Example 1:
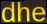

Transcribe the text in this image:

dhe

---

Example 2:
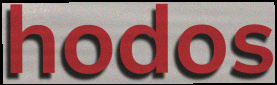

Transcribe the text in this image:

hodos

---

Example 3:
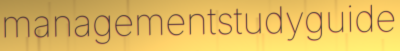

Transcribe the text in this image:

managementstudyguide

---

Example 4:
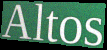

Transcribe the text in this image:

Altos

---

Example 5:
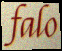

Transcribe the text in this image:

falo